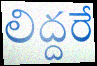
లిద్దరే